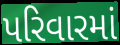
પરિવારમાં